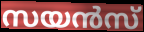
സയൻസ്